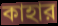
কাহার